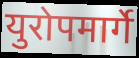
युरोपमार्गे